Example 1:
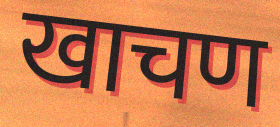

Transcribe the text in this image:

खाचण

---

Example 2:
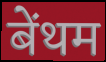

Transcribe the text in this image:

बेंथम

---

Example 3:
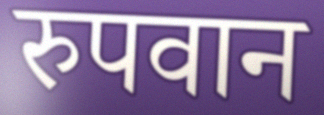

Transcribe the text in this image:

रुपवान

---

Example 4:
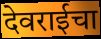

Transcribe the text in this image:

देवराईचा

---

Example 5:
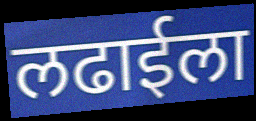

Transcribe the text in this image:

लढाईला